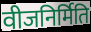
वीजनिर्मिति